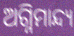
ଅଗ୍ନିମାନ୍ଦ୍ୟ